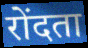
रोंदता